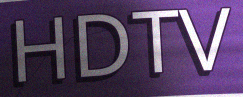
HDTV